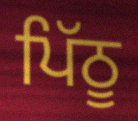
ਪਿੱਠੂ